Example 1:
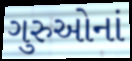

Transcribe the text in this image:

ગુરુઓનાં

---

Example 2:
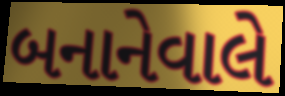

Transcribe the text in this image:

બનાનેવાલે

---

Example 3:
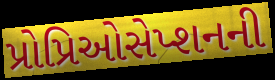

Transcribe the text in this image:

પ્રોપ્રિઓસેપ્શનની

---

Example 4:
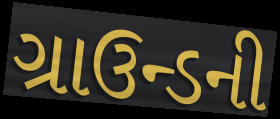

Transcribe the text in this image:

ગ્રાઉન્ડની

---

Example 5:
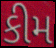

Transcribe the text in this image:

કીમ